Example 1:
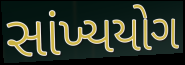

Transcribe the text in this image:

સાંખ્યયોગ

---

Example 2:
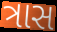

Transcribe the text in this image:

ત્રાસ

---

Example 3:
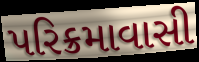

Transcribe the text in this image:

પરિક્રમાવાસી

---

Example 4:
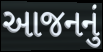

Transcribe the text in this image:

આજનનું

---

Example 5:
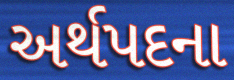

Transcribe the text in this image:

અર્થપદના